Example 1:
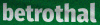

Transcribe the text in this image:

betrothal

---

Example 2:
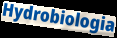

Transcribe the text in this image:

Hydrobiologia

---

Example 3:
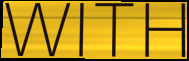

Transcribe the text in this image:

WITH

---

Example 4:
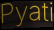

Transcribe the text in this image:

Pyati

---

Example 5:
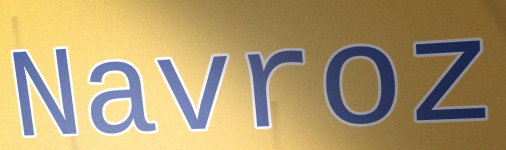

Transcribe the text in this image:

Navroz